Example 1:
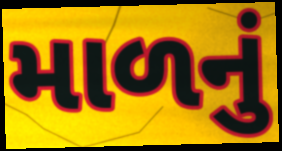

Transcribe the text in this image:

માળનું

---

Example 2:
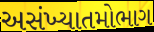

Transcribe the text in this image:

અસંખ્યાતમોભાગ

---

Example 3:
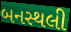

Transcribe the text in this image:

બનસ્થલી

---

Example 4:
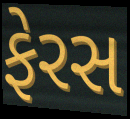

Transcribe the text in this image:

ફેરસ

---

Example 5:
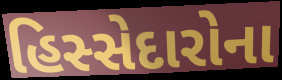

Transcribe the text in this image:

હિસ્સેદારોના